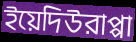
ইয়েদিউরাপ্পা